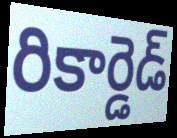
రికార్డెడ్